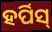
ହର୍ପିସ୍